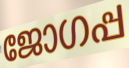
ജോഗപ്പ